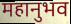
महानुभव